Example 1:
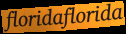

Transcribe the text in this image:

floridaflorida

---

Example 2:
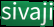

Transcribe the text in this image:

sivaji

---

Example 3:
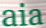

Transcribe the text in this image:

aia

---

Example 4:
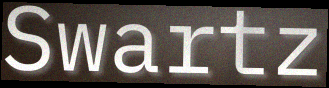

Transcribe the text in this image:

Swartz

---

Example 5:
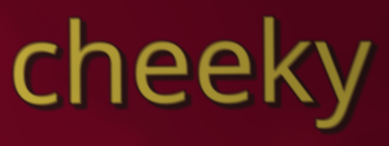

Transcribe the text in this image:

cheeky